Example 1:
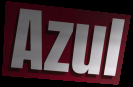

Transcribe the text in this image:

Azul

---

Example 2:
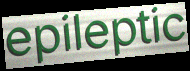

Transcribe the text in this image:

epileptic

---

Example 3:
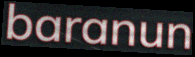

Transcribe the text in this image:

baranun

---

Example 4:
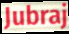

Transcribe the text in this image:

Jubraj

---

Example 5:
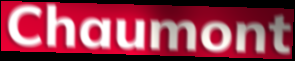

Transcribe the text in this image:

Chaumont